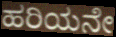
ಹರಿಯನೇ